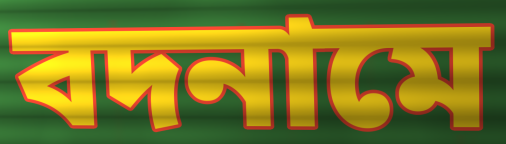
বদনামে